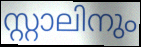
സ്റ്റാലിനും